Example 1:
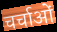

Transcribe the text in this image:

चर्चाओं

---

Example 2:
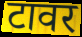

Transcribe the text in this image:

टावर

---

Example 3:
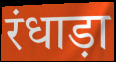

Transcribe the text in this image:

रंधाड़ा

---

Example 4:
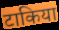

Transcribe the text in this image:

टाकिया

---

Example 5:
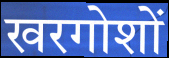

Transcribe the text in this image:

खरगोशों